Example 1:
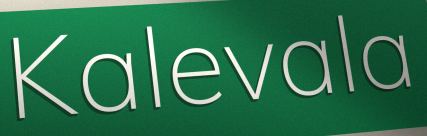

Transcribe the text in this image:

Kalevala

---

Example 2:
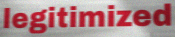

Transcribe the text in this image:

legitimized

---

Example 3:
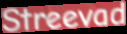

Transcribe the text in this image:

Streevad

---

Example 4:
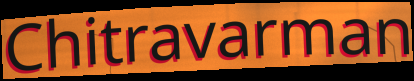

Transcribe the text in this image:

Chitravarman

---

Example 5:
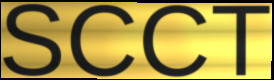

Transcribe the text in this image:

SCCT